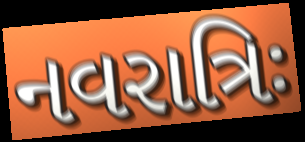
નવરાત્રિઃ